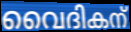
വൈദികന്